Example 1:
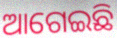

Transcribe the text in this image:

ଆଗେଇଛି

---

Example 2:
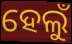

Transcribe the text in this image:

ହେଲୁଁ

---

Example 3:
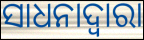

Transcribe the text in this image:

ସାଧନାଦ୍ଵାରା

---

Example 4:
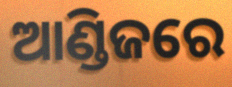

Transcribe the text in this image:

ଆଣ୍ଡିଜରେ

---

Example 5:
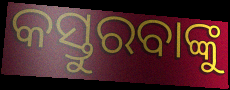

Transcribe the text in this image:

କସ୍ତୁରବାଙ୍କୁ